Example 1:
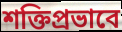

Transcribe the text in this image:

শক্তিপ্রভাবে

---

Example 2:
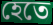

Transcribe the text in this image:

হেতে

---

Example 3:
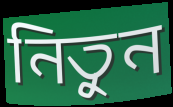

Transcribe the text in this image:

নিতুন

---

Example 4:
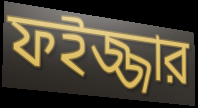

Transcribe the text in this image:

ফইজ্জার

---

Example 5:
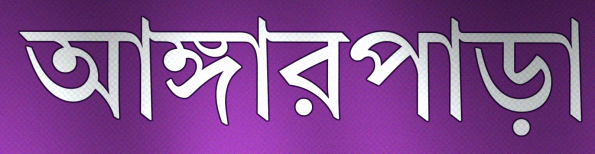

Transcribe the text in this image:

আঙ্গারপাড়া